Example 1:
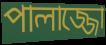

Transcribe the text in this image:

পালাজ্জো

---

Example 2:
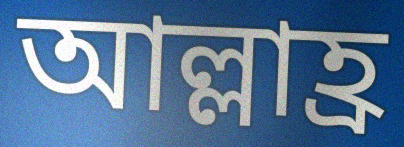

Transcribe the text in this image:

আল্লাহ্র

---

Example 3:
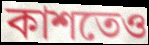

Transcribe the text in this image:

কাশতেও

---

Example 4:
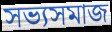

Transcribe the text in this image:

সভ্যসমাজ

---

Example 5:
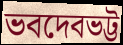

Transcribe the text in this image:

ভবদেবভট্ট